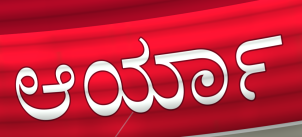
ಆರ್ಯಾ